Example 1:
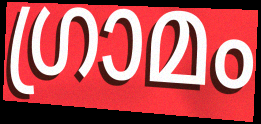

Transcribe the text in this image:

ഗ്രാമം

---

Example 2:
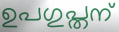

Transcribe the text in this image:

ഉപഗുപ്തന്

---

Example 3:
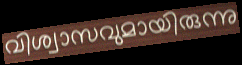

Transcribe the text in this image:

വിശ്വാസവുമായിരുന്നു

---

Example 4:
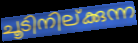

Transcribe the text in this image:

ചൂടിനില്ക്കുന്ന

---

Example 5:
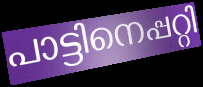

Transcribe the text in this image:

പാട്ടിനെപ്പറ്റി